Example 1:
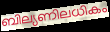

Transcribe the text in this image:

ബില്യണിലധികം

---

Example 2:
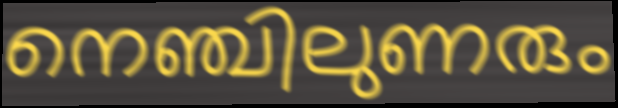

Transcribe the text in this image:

നെഞ്ചിലുണരും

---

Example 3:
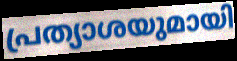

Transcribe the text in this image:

പ്രത്യാശയുമായി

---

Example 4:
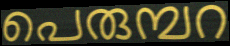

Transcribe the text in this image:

പെരുമ്പറ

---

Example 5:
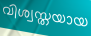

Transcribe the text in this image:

വിശ്വസ്തയായ